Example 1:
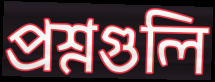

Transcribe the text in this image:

প্রশ্নগুলি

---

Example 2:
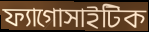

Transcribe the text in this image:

ফ্যাগোসাইটিক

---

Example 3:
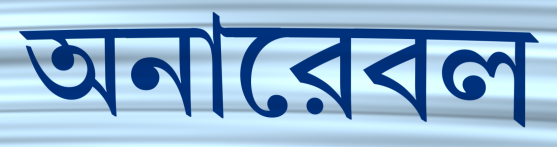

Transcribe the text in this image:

অনারেবল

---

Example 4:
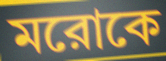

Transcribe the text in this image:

মরোকে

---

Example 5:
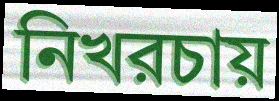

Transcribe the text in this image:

নিখরচায়